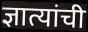
ज्ञात्यांची